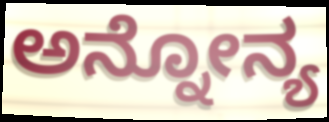
ಅನ್ನೋನ್ಯ